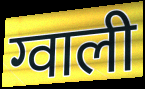
ग्वाली